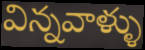
విన్నవాళ్ళు